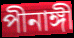
পীনাঙ্গী